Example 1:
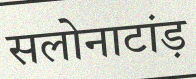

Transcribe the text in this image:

सलोनाटांड़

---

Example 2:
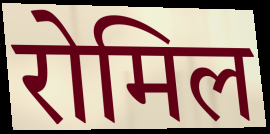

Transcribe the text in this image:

रोमिल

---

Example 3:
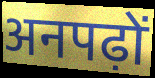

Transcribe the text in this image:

अनपढ़ों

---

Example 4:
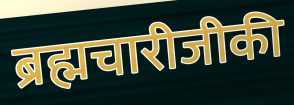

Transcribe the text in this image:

ब्रह्मचारीजीकी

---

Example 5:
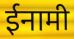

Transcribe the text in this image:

ईनामी